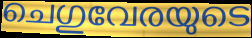
ചെഗുവേരയുടെ